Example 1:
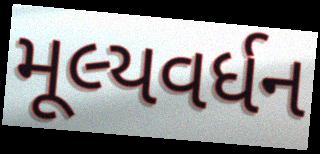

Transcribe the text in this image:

મૂલ્યવર્ધન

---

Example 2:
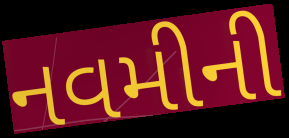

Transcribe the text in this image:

નવમીની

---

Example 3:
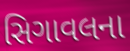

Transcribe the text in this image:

સિગાવલના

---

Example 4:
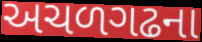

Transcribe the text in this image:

અચળગઢના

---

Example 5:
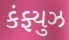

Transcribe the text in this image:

કંફ્યુઝ